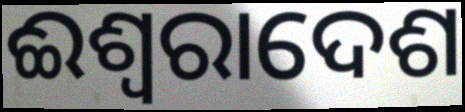
ଈଶ୍ୱରାଦେଶ